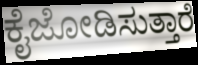
ಕೈಜೋಡಿಸುತ್ತಾರೆ